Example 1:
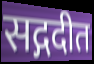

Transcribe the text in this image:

सद्गदीत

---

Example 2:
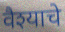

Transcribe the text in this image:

वैश्याचे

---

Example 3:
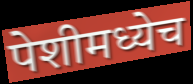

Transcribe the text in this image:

पेशीमध्येच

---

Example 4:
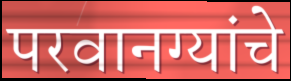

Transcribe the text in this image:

परवानग्यांचे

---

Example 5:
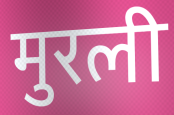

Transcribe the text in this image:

मुरली